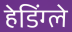
हेडिंग्ले